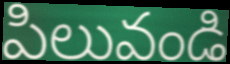
పిలువండి